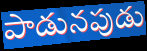
పాడునపుడు